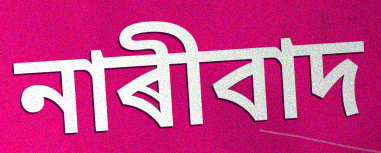
নাৰীবাদ